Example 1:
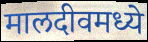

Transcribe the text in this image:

मालदीवमध्ये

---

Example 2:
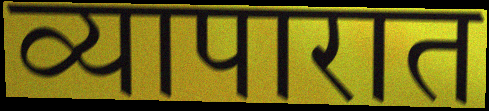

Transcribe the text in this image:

व्यापारात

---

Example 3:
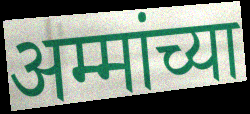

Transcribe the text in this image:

अम्मांच्या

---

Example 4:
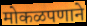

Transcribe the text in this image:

मोकळपणाने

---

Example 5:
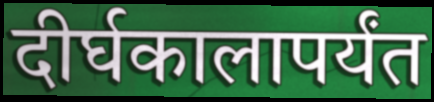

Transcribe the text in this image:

दीर्घकालापर्यंत